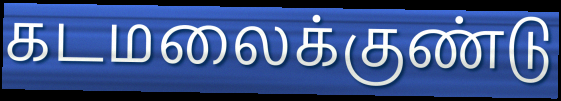
கடமலைக்குண்டு